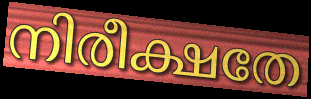
നിരീക്ഷതേ